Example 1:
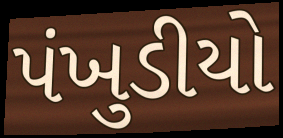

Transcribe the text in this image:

પંખુડીયો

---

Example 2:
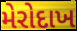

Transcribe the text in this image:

મેરોદાખ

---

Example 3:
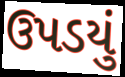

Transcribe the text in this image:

ઉપડયું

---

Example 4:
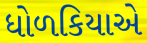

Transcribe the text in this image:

ધોળકિયાએ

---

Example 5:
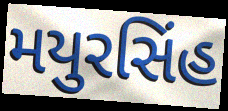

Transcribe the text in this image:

મયુરસિંહ